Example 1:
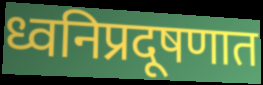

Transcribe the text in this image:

ध्वनिप्रदूषणात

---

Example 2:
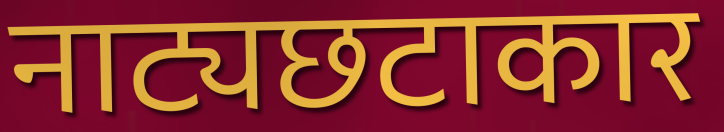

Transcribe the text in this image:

नाट्यछटाकार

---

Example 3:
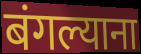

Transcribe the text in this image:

बंगल्याना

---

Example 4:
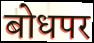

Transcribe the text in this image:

बोधपर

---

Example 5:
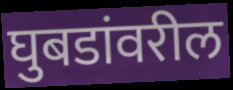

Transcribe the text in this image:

घुबडांवरील